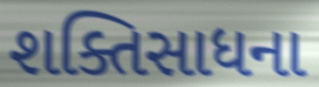
શક્તિસાધના